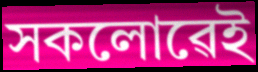
সকলোৱেই